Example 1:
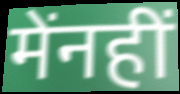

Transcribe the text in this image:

मेंनहीं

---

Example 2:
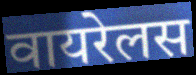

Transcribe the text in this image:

वायरेलस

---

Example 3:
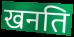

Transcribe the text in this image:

खनति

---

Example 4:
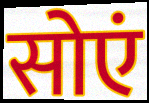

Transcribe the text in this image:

सोएं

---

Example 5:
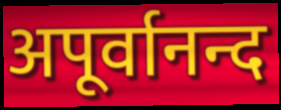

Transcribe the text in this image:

अपूर्वानन्द